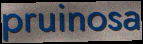
pruinosa